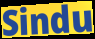
Sindu